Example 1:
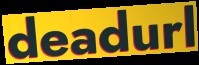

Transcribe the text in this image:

deadurl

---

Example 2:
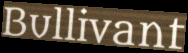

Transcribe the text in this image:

Bullivant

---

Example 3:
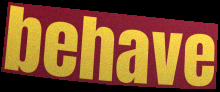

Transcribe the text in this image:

behave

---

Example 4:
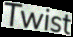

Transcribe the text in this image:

Twist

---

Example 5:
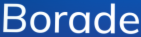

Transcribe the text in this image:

Borade